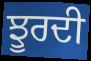
ਝੂਰਦੀ